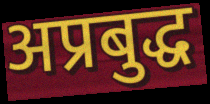
अप्रबुद्ध